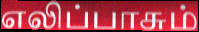
எலிப்பாசும்